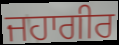
ਜਹਾਗੀਰ